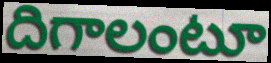
దిగాలంటూ